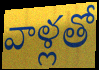
వాళ్లతో